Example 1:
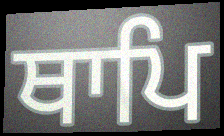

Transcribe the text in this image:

ਥਾਪਿ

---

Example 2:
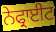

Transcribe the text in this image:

ਨੇਫ੍ਰਾਈਟ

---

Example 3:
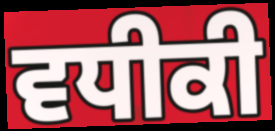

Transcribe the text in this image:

ਵਧੀਕੀ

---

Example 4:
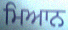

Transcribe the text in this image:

ਮਿਆਨ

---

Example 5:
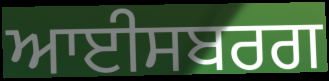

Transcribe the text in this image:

ਆਈਸਬਰਗ